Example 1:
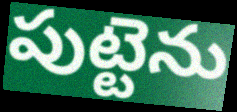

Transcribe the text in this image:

పుట్టెను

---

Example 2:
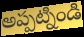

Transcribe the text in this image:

అప్పట్నిండి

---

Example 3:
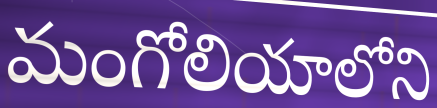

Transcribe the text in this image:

మంగోలియాలోని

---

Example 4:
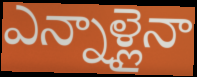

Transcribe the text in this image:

ఎన్నాళ్లైనా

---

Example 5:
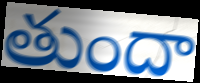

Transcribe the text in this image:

తుందా